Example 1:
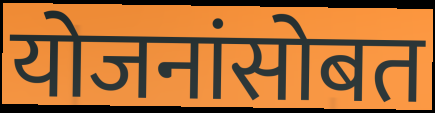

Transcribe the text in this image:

योजनांसोबत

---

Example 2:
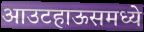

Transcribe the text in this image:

आउटहाऊसमध्ये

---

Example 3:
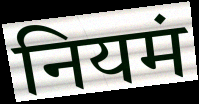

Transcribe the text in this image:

नियमं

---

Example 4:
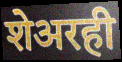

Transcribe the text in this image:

शेअरही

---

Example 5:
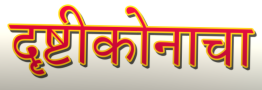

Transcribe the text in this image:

दृष्टीकोनाचा